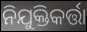
ନିଯୁକ୍ତିକର୍ତ୍ତା